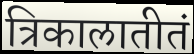
त्रिकालातीतं